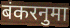
बंकरनुमा